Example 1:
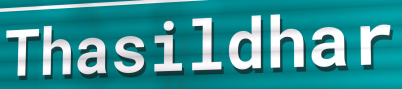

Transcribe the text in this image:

Thasildhar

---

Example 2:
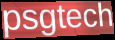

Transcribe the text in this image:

psgtech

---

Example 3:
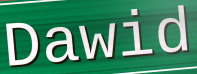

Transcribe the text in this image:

Dawid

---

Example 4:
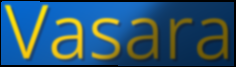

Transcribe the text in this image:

Vasara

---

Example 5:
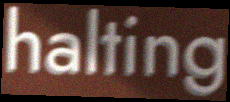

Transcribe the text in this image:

halting